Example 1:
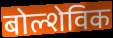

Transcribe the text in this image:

बोल्शेविक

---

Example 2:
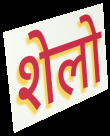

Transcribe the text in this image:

शेलो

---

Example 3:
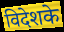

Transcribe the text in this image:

विदेशके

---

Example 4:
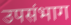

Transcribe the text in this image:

उपसंभाग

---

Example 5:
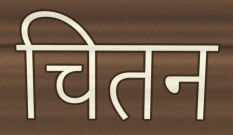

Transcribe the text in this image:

चितन